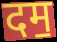
दम॒